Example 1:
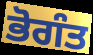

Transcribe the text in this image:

ਭੋਗੰਤ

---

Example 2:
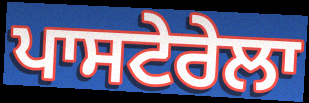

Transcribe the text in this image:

ਪਾਸਟੇਰੇਲਾ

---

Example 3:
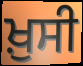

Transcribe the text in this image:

ਖ਼ੁਸੀ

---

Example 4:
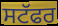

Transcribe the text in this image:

ਸਟੱਫਰ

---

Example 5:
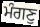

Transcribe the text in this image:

ਮੰਗਣੁ